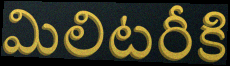
మిలిటరీకి